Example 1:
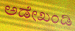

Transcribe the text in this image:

ಅಡೇಖಂಡಿ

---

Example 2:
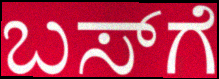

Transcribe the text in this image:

ಬಸ್‍ಗೆ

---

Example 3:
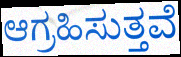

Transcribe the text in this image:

ಆಗ್ರಹಿಸುತ್ತವೆ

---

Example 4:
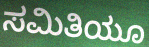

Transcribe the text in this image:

ಸಮಿತಿಯೂ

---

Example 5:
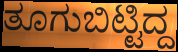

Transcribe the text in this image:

ತೂಗುಬಿಟ್ಟಿದ್ದ